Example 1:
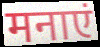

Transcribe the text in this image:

मनाएं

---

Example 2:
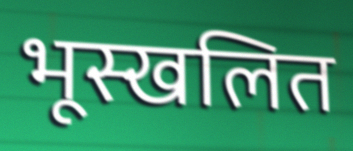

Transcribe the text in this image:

भूस्खलित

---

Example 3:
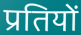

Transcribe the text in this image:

प्रतियों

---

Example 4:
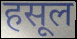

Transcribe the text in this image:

हसूल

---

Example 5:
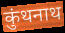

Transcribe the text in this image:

कुंथनाथ